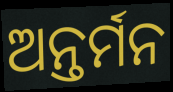
ଅନ୍ତର୍ମନ